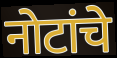
नोटांचे